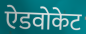
ऐडवोकेट